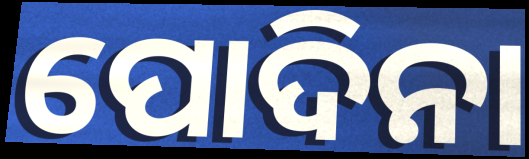
ପୋଦିନା